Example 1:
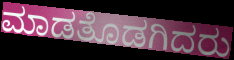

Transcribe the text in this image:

ಮಾಡತೊಡಗಿದರು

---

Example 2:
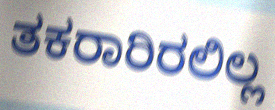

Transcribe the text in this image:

ತಕರಾರಿರಲಿಲ್ಲ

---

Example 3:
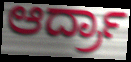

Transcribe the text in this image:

ಆರ್ದ್ರಾ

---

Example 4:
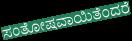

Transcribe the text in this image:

ಸಂತೋಷವಾಯಿತೆಂದರೆ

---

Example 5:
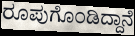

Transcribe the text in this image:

ರೂಪುಗೊಂಡಿದ್ದಾನೆ